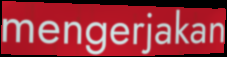
mengerjakan